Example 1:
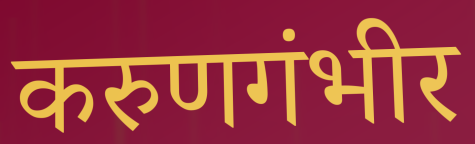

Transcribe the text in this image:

करुणगंभीर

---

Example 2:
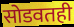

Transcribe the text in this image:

सोडवतही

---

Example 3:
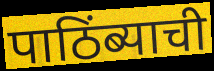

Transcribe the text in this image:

पाठिंब्याची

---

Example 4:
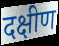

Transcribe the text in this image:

दक्षीण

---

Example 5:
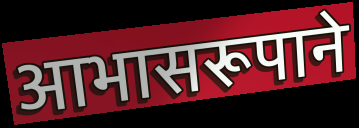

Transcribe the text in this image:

आभासरूपाने